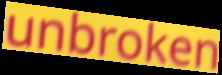
unbroken